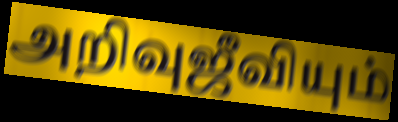
அறிவுஜீவியும்